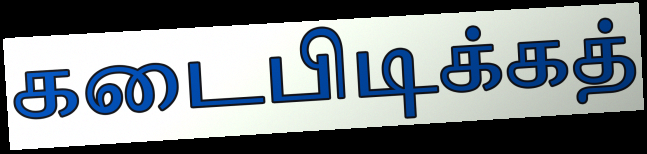
கடைபிடிக்கத்